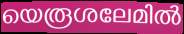
യെരൂശലേമിൽ